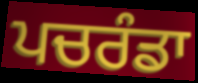
ਪਚਰੰਡਾ